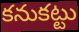
కనుకట్టు